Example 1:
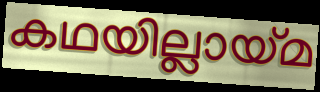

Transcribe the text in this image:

കഥയില്ലായ്മ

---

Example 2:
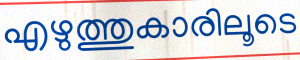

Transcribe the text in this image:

എഴുത്തുകാരിലൂടെ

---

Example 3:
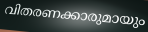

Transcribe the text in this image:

വിതരണക്കാരുമായും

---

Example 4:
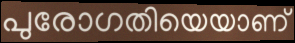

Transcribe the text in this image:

പുരോഗതിയെയാണ്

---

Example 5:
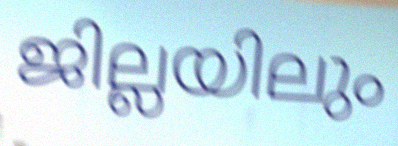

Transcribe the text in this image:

ജില്ലയിലും